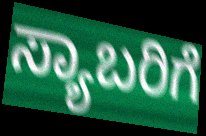
ಸ್ಯಾಬರಿಗೆ